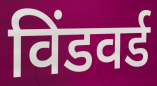
विंडवर्ड